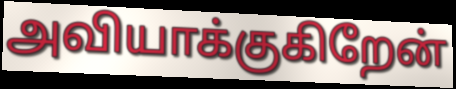
அவியாக்குகிறேன்